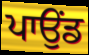
ਪਾਉਂਡ